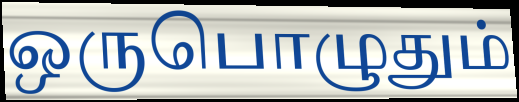
ஒருபொழுதும்